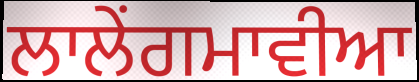
ਲਾਲੇਂਗਮਾਵੀਆ